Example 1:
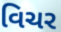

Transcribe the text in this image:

વિચર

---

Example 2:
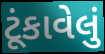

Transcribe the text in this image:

ટૂંકાવેલું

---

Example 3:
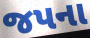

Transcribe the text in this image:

જપના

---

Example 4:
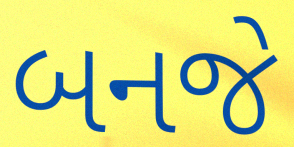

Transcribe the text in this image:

બનજે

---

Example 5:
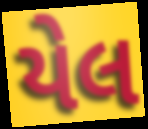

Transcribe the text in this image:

યેલ